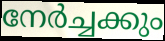
നേർച്ചക്കും